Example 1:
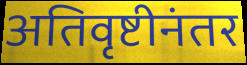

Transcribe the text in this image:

अतिवृष्टीनंतर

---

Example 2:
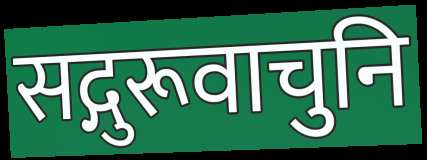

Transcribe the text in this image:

सद्गुरूवाचुनि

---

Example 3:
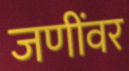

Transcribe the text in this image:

जणींवर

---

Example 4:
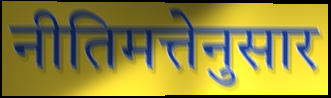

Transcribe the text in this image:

नीतिमत्तेनुसार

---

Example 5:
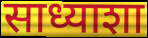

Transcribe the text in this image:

साध्याशा